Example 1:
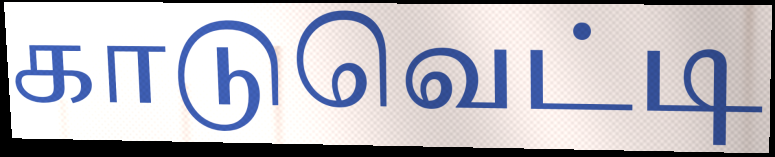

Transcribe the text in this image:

காடுவெட்டி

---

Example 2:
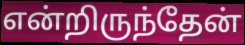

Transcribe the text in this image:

என்றிருந்தேன்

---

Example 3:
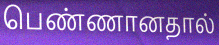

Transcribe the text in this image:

பெண்ணானதால்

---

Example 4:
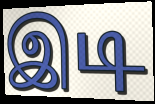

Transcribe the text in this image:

இடி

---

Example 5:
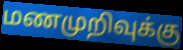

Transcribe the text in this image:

மணமுறிவுக்கு